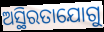
ଅସ୍ଥିରତାଯୋଗୁ